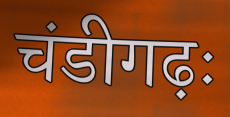
चंडीगढ़ः